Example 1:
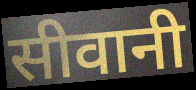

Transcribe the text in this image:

सीवानी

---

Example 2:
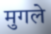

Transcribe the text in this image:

मुगले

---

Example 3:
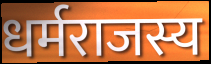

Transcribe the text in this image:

धर्मराजस्य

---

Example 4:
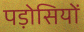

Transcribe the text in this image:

पड़ोसियों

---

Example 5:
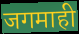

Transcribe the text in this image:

जगमाही